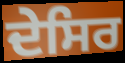
ਦੇਸਿਰ